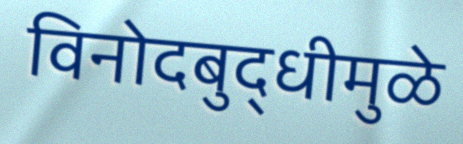
विनोदबुद्धीमुळे